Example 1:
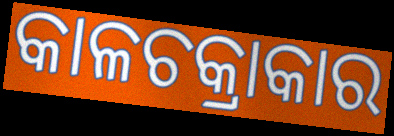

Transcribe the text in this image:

କାଳଚକ୍ରାକାର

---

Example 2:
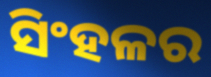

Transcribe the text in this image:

ସିଂହଳର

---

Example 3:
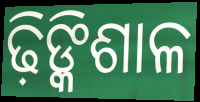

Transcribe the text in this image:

ଢ଼ିଙ୍କିଶାଳ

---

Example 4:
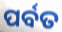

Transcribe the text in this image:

ପର୍ବତ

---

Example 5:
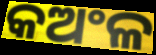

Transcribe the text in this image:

କଅଂଳ